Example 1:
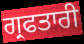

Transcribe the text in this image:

ਗ੍ਰਫਤਾਰੀ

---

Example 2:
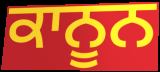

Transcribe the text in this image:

ਕਾਨੂਨ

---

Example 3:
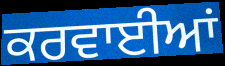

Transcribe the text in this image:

ਕਰਵਾਈਆਂ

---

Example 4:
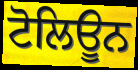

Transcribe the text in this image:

ਟੋਲਿਊਨ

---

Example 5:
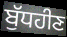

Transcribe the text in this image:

ਬੁੱਧਹੀਣ